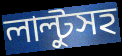
লাল্টুসহ